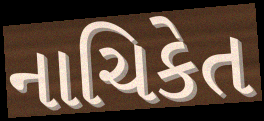
નાચિકેત